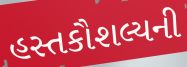
હસ્તકૌશલ્યની